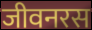
जीवनरस